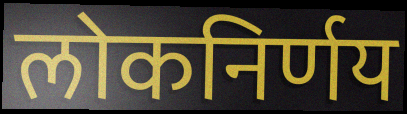
लोकनिर्णय